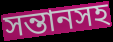
সন্তানসহ